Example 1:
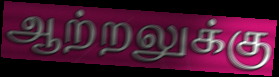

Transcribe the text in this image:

ஆற்றலுக்கு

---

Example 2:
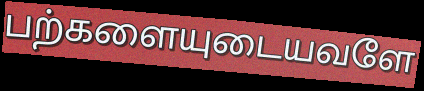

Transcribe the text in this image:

பற்களையுடையவளே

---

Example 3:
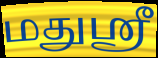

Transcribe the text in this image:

மதுஸ்ரீ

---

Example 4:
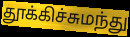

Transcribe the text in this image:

தூக்கிச்சுமந்து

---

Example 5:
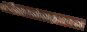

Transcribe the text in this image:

மஹோன்னதமான